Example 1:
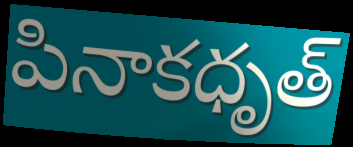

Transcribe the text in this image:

పినాకధృత్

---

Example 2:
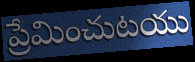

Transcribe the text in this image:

ప్రేమించుటయు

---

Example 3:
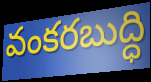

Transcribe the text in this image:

వంకరబుద్ధి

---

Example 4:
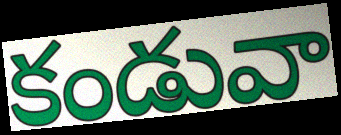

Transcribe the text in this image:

కండువా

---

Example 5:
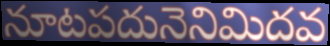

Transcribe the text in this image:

నూటపదునెనిమిదవ